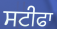
ਸਟੀਫਾ